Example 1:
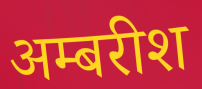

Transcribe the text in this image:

अम्बरीश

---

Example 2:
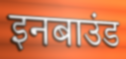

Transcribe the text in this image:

इनबाउंड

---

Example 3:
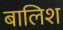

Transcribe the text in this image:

बालिश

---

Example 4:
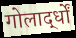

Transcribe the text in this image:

गोलार्द्धों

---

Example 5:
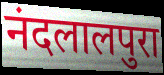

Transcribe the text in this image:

नंदलालपुरा